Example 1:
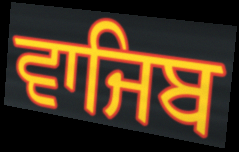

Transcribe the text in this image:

ਵਾਜਿਬ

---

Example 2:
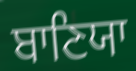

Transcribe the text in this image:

ਬਾਣਿਯਾ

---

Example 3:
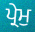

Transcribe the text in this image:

ਪ੍ਰੇਮੁ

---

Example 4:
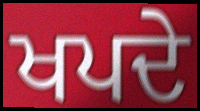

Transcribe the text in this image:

ਖਪਦੇ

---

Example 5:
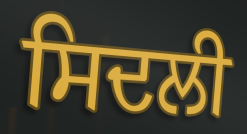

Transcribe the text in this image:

ਸਿਦਲੀ